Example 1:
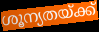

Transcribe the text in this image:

ശൂന്യതയ്ക്ക്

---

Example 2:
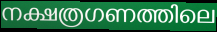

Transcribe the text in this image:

നക്ഷത്രഗണത്തിലെ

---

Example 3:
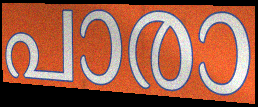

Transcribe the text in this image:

പാരാ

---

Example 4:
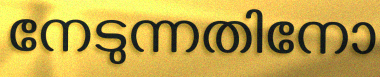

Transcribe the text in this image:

നേടുന്നതിനോ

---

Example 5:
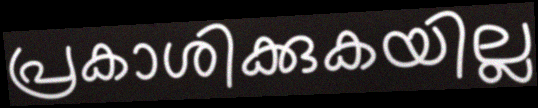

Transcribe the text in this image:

പ്രകാശിക്കുകയില്ല